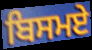
ਬਿਸਮਏ